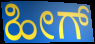
ಹೀಗ್